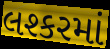
લશ્કરમાં